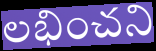
లభించని